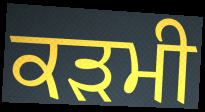
ਕੜਮੀ